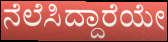
ನೆಲೆಸಿದ್ದಾರೆಯೇ